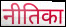
नीतिका